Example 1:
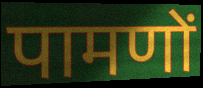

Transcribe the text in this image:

पामणों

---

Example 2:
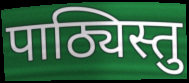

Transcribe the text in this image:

पाठ्यिस्तु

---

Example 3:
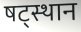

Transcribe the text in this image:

षट्स्थान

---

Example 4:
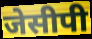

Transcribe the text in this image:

जेसीपी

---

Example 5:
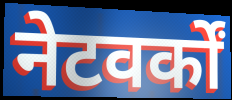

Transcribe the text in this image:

नेटवर्कों